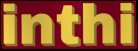
inthi